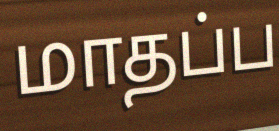
மாதப்ப